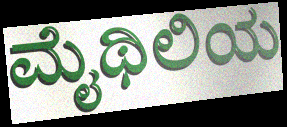
ಮೈಥಿಲಿಯ